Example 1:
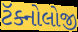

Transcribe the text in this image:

ટૅક્નોલોજી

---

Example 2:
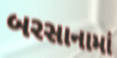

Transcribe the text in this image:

બરસાનામાં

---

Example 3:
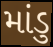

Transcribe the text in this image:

માંડુ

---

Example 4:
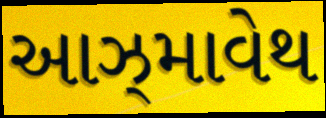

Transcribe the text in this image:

આઝ્માવેથ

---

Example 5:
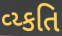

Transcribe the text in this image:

વ્ય્કતિ